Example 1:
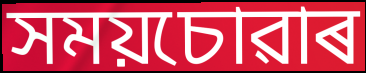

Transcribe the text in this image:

সময়চোৱাৰ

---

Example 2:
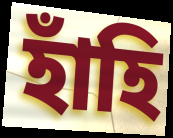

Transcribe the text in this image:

হাঁহি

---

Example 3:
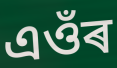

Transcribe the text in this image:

এওঁৰ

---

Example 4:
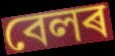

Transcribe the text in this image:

বেলৰ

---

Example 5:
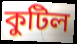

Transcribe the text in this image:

কুটিল